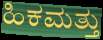
ಹಿಕಮತ್ತು